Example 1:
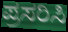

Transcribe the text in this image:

ಪ್ರಸರಿಸಿ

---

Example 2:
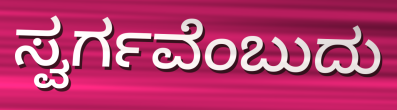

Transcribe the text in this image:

ಸ್ವರ್ಗವೆಂಬುದು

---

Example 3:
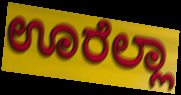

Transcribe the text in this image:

ಊರೆಲ್ಲಾ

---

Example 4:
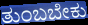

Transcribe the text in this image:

ತುಂಬಬೇಕು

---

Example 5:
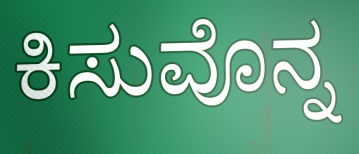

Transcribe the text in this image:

ಕಿಸುವೊನ್ನ